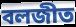
বলজীত